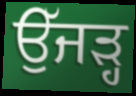
ਉੱਜੜ੍ਹ